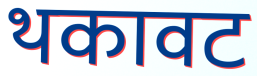
थकावट